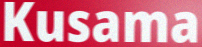
Kusama